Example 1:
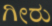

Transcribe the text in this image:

ಗೀರು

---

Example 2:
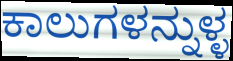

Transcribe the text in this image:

ಕಾಲುಗಳನ್ನುಳ್ಳ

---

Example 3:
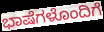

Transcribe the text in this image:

ಭಾಷೆಗಳೊಂದಿಗೆ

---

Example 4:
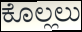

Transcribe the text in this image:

ಕೊಲ್ಲಲು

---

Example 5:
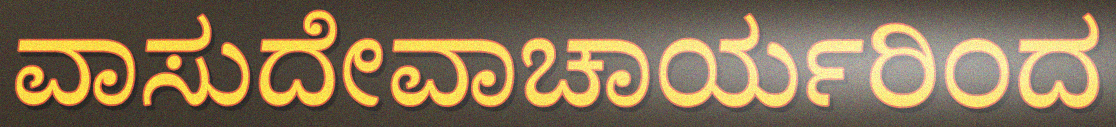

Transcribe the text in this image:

ವಾಸುದೇವಾಚಾರ್ಯರಿಂದ